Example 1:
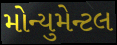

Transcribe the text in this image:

મોન્યુમેન્ટલ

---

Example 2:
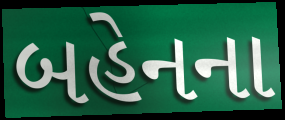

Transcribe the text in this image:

બહેનના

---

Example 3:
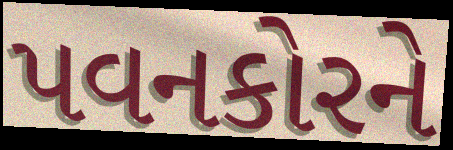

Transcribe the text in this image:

પવનકોરને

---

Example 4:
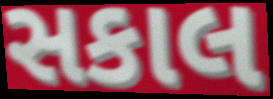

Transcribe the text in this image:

સકાલ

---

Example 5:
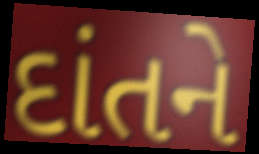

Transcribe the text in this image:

દાંતને